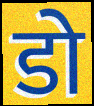
डो